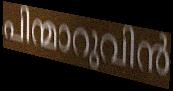
പിന്മാറുവിൻ